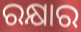
ରକ୍ଷାର